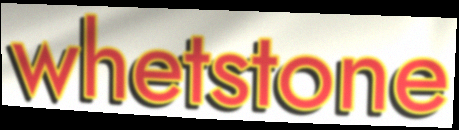
whetstone